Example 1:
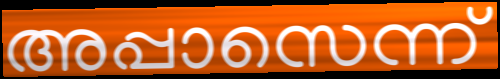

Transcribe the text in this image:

അപ്പാസെന്ന്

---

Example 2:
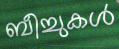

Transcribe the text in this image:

ബീച്ചുകൾ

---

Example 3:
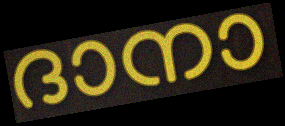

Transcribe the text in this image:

ദാനാ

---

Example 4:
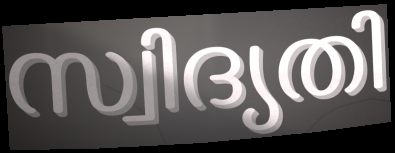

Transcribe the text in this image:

സ്വിദ്യതി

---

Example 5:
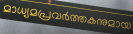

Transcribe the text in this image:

മാധ്യമപ്രവർത്തകനുമായ